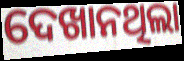
ଦେଖାନଥିଲା